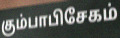
கும்பாபிசேகம்